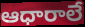
ఆధారాలే